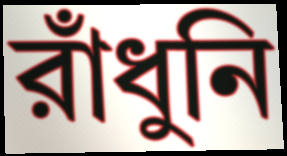
রাঁধুনি